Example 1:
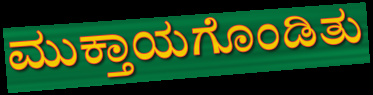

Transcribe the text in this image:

ಮುಕ್ತಾಯಗೊಂಡಿತು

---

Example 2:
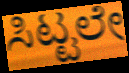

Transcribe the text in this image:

ಸಿಟ್ಟಲೇ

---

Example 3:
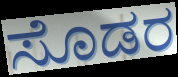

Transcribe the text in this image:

ಸೊಡರ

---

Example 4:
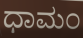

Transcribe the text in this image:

ಧಾಮಂ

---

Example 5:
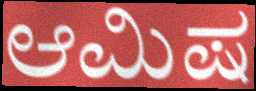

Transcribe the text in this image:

ಆಮಿಷ